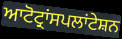
ਆਟੋਟ੍ਰਾਂਸਪਲਾਂਟੇਸ਼ਨ